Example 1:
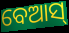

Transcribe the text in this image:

ବେଆସ୍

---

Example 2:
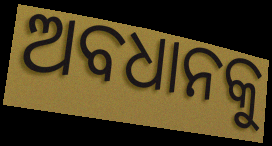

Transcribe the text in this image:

ଅବଧାନକୁ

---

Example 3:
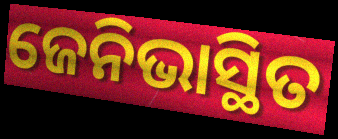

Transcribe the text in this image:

ଜେନିଭାସ୍ଥିତ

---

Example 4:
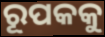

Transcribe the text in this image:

ରୂପକକୁ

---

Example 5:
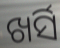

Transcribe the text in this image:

ଖର୍ସି